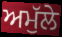
ਅਮੁੱਲੇ